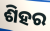
ଶିହର